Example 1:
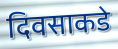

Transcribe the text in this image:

दिवसाकडे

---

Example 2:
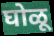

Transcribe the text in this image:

घोळू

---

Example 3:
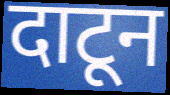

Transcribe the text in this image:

दाटून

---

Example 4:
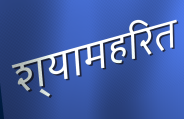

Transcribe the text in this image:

श्यामहरित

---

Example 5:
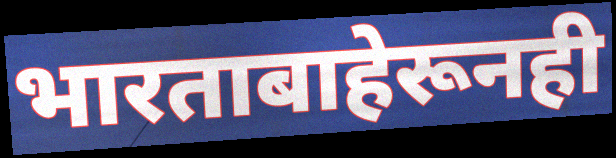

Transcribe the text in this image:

भारताबाहेरूनही